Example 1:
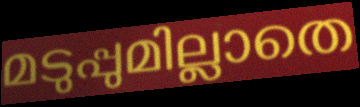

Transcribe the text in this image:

മടുപ്പുമില്ലാതെ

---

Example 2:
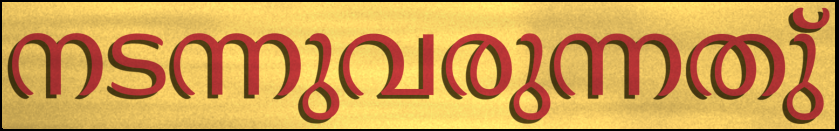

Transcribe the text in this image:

നടന്നുവരുന്നതു്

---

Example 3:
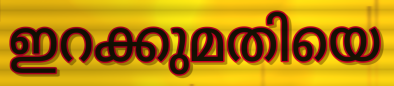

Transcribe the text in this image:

ഇറക്കുമതിയെ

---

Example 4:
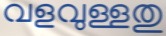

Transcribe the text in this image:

വളവുള്ളതു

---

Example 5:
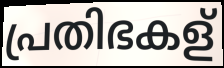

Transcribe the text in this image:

പ്രതിഭകള്